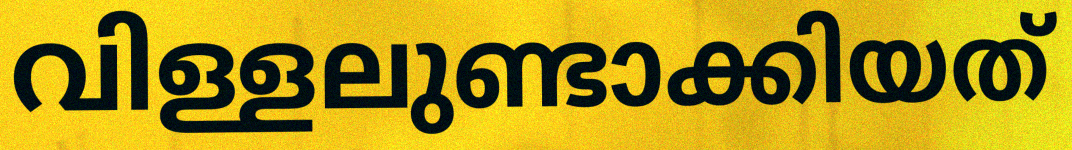
വിള്ളലുണ്ടാക്കിയത്